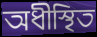
অধীস্থিত